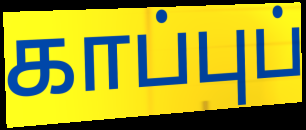
காப்புப்